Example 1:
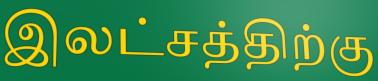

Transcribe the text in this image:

இலட்சத்திற்கு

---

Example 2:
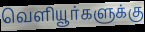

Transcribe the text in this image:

வெளியூர்களுக்கு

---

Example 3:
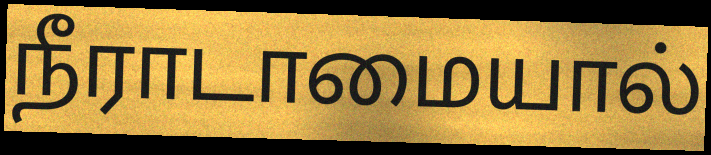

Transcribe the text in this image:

நீராடாமையால்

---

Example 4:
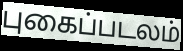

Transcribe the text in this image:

புகைப்படலம்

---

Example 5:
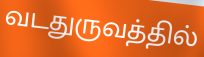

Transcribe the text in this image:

வடதுருவத்தில்